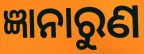
ଜ୍ଞାନାରୁଣ